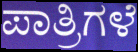
ಪಾತ್ರಿಗಳೆ